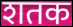
शतक